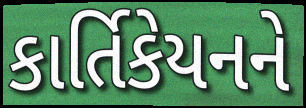
કાર્તિકેયનને